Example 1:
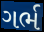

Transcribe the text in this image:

ગર્ભ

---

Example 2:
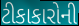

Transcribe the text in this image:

ટીકાકારોની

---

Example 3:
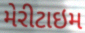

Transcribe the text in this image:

મેરીટાઇમ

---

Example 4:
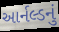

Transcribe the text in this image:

આર્નલ્ડનું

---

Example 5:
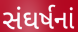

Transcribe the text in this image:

સંઘર્ષનાં